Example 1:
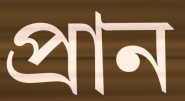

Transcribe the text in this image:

প্রান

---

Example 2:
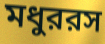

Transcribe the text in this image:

মধুররস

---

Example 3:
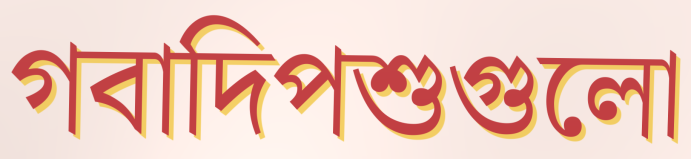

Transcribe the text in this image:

গবাদিপশুগুলো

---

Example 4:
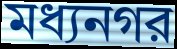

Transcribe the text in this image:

মধ্যনগর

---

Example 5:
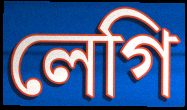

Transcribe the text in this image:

লেগি